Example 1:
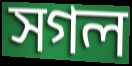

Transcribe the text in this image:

সগল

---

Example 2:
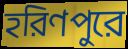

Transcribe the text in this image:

হরিণপুরে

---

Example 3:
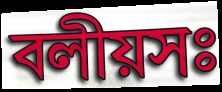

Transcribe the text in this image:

বলীয়সঃ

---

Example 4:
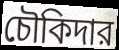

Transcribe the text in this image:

চৌকিদার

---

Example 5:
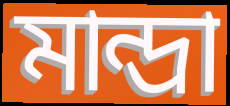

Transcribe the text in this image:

মান্দ্রা